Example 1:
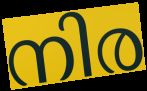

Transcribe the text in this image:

നിര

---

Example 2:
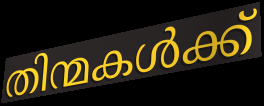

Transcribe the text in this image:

തിന്മകൾക്ക്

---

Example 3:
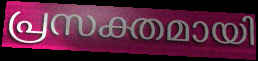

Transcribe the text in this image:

പ്രസക്തമായി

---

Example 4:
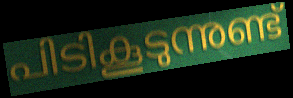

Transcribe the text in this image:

പിടികൂടുന്നുണ്ട്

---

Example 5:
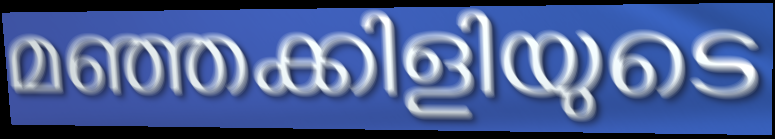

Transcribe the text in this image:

മഞ്ഞക്കിളിയുടെ